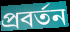
প্ৰবৰ্তন